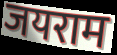
जयराम